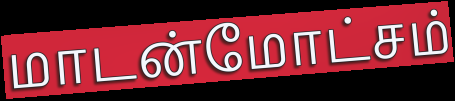
மாடன்மோட்சம்